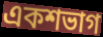
একশভাগ